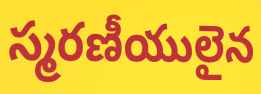
స్మరణీయులైన